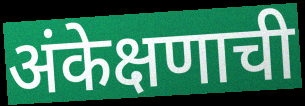
अंकेक्षणाची